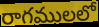
రాగములలో